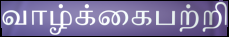
வாழ்க்கைபற்றி